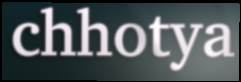
chhotya